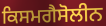
ਕਿਸਮਗੈਸੋਲੀਨ